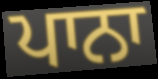
ਪਾਨਾ